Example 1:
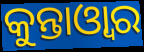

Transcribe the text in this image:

କୁନ୍ତାଓ୍ୱାର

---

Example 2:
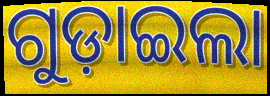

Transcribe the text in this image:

ଗୁଡ଼ାଇଲା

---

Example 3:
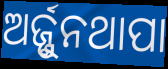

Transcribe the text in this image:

ଅର୍ଜ୍ଜୁନଥାପା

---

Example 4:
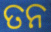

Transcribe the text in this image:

ତନ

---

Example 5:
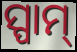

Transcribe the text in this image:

ସ୍ପାମ୍